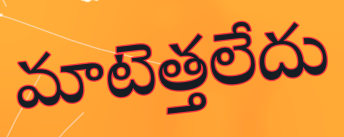
మాటెత్తలేదు